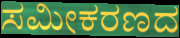
ಸಮೀಕರಣದ